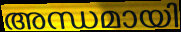
അന്ധമായി